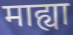
माह्या